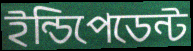
ইন্ডিপেডেন্ট